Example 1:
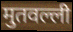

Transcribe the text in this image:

मुतवल्ली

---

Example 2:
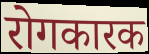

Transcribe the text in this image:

रोगकारक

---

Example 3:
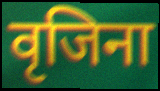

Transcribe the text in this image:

वृजिना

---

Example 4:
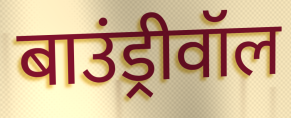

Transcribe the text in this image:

बाउंड्रीवॉल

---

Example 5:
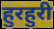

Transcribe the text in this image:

हुरहुरी